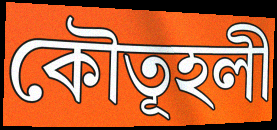
কৌতূহলী